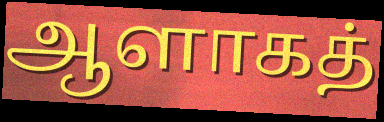
ஆளாகத்